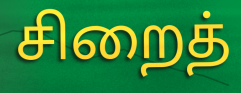
சிறைத்